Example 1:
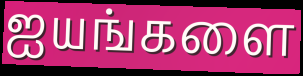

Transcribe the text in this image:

ஐயங்களை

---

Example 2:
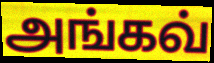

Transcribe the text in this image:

அங்கவ்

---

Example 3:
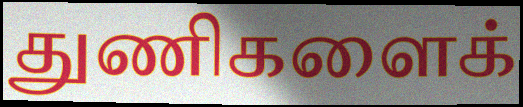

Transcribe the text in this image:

துணிகளைக்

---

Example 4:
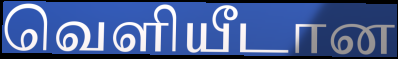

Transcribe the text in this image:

வெளியீடான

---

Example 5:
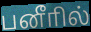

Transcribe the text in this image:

பனீரில்